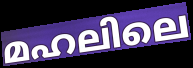
മഹലിലെ